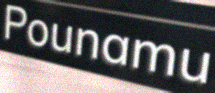
Pounamu